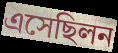
এসেছিলন